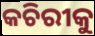
କଚିରୀକୁ